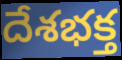
దేశభక్త